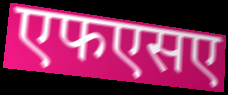
एफएसए